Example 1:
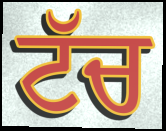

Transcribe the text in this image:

ਟੱਚ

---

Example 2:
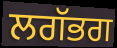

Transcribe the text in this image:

ਲਗੱਭਗ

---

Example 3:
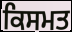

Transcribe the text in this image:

ਕਿਸਮਤ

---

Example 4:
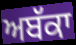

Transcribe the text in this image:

ਅਬੱਕਾ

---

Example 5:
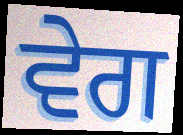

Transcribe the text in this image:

ਵੇਗ